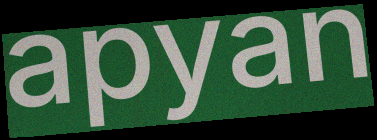
apyan